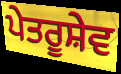
ਪੇਤਰੂਸ਼ੇਵ